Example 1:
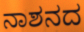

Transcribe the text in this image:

ನಾಶನದ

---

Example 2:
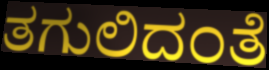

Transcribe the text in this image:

ತಗುಲಿದಂತೆ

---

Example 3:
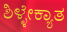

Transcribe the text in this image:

ಶಿಳ್ಳೇಕ್ಯಾತ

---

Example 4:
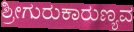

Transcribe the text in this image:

ಶ್ರೀಗುರುಕಾರುಣ್ಯವ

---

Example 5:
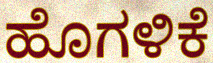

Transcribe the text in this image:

ಹೊಗಳಿಕೆ